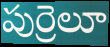
పుర్రెలూ